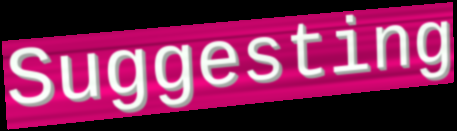
Suggesting